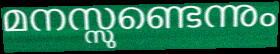
മനസ്സുണ്ടെന്നും